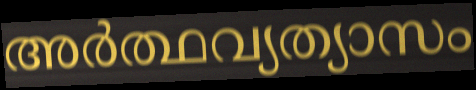
അർത്ഥവ്യത്യാസം